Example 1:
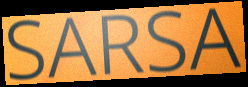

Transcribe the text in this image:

SARSA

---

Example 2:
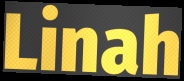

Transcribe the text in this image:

Linah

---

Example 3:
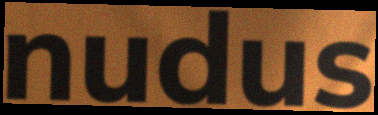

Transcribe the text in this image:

nudus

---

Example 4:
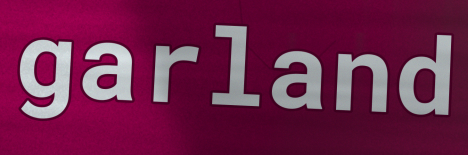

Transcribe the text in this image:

garland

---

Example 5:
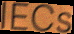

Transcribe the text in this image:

IECs